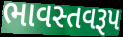
ભાવસ્તવરૂપ